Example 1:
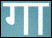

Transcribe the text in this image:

गा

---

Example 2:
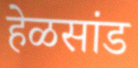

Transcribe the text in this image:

हेळसांड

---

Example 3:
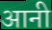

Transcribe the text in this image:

आनी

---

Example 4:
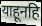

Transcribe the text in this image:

याहूनहि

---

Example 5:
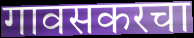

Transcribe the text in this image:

गावसकरचा